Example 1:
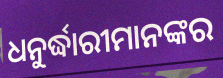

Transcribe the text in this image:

ଧନୁର୍ଦ୍ଧାରୀମାନଙ୍କର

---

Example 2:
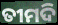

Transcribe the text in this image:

ତୀମଦି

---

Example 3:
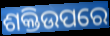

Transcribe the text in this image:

ଶକ୍ତିଉପରେ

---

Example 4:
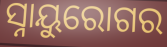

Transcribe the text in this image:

ସ୍ନାୟୁରୋଗର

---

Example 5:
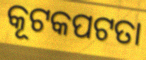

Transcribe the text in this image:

କୂଟକପଟତା